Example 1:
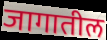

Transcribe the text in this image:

जागातील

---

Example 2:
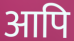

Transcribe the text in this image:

आपि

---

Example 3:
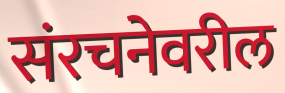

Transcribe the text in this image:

संरचनेवरील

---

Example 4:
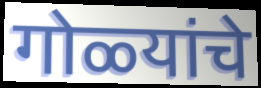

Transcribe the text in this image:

गोळ्यांचे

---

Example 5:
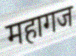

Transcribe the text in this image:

महागज